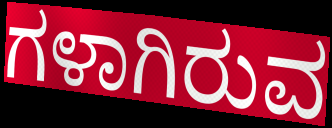
ಗಳಾಗಿರುವ